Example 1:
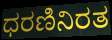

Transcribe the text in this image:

ಧರಣಿನಿರತ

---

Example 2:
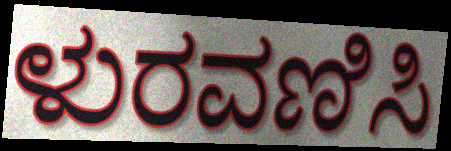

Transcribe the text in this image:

ಳುರವಣಿಸಿ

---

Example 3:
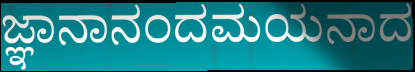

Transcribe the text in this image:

ಜ್ಞಾನಾನಂದಮಯನಾದ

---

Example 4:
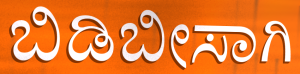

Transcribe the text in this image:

ಬಿಡಿಬೀಸಾಗಿ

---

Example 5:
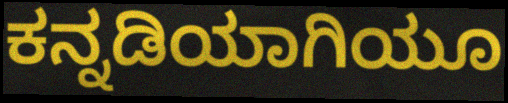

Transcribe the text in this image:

ಕನ್ನಡಿಯಾಗಿಯೂ